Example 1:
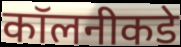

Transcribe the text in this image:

कॉलनीकडे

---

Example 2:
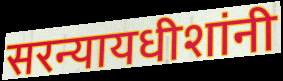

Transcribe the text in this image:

सरन्यायधीशांनी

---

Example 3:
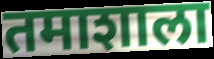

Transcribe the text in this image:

तमाशाला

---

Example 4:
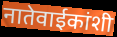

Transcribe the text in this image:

नातेवाईकांशी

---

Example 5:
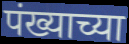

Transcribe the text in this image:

पंख्याच्या